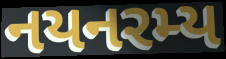
નયનરમ્ય